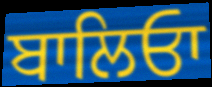
ਬਾਲਿਓਾ